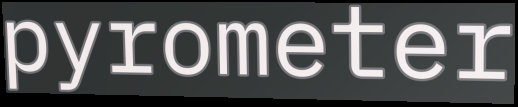
pyrometer